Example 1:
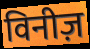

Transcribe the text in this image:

विनीज़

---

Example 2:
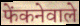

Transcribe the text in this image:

फेंकनेवाले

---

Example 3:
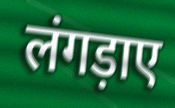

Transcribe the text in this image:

लंगड़ाए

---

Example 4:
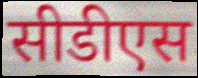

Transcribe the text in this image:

सीडीएस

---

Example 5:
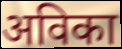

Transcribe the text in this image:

अविका